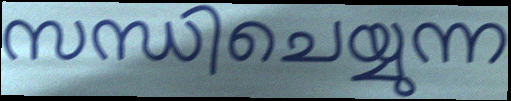
സന്ധിചെയ്യുന്ന